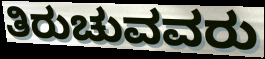
ತಿರುಚುವವರು